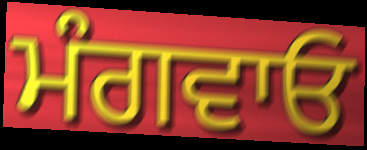
ਮੰਗਵਾਓ